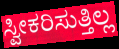
ಸ್ವೀಕರಿಸುತ್ತಿಲ್ಲ